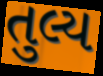
તુલ્ય